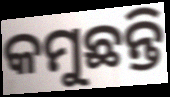
କମୁଛନ୍ତି